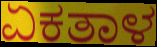
ಏಕತಾಳ